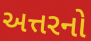
અત્તરનો